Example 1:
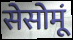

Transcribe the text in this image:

सेसोमूं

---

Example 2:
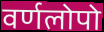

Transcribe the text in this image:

वर्णलोपो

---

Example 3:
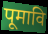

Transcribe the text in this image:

पूमावि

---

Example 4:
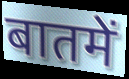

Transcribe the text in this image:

बातमें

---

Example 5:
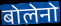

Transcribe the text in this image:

बोलेनो